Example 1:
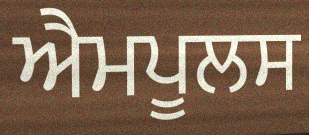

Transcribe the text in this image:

ਐਮਪੂਲਸ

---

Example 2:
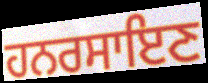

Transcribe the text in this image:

ਹਨਰਸਾਇਣ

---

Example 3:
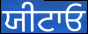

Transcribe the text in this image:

ਯੀਟਾਓ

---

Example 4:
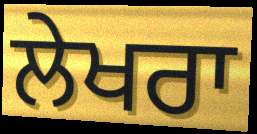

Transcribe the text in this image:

ਲੇਖਰਾ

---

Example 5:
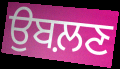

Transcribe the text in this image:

ਉਬਲ਼ਣ